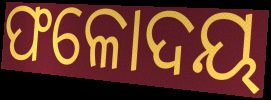
ଫଳୋଦୟ